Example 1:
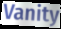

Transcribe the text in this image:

Vanity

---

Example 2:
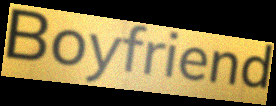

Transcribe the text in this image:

Boyfriend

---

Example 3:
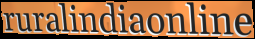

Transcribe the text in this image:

ruralindiaonline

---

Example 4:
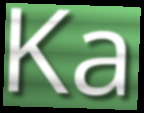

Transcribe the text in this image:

Ka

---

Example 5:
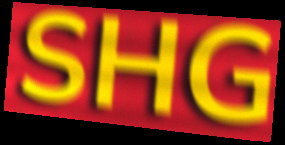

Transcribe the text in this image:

SHG